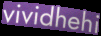
vividhehi